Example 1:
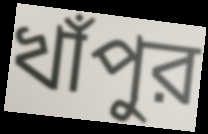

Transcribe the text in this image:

খাঁপুর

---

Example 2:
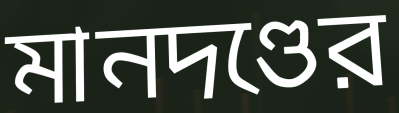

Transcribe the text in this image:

মানদণ্ডের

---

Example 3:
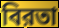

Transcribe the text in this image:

বিরতা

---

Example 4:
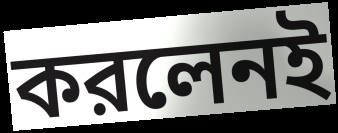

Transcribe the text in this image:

করলেনই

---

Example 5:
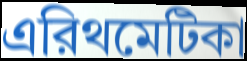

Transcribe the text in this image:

এরিথমেটিকা